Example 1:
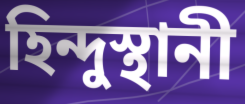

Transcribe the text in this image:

হিন্দুস্থানী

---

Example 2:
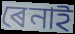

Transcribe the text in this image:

ৰেনাই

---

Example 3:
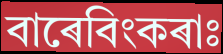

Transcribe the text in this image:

বাৰেবিংকৰাঃ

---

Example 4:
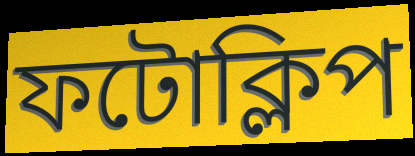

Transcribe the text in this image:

ফটোক্লিপ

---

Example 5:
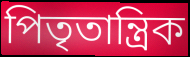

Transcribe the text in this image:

পিতৃতান্ত্ৰিক